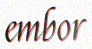
embor